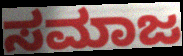
ಸಮಾಜ